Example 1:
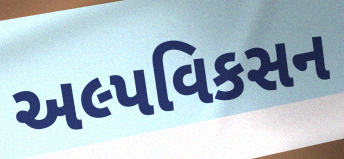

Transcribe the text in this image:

અલ્પવિકસન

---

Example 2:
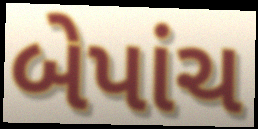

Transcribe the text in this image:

બેપાંચ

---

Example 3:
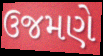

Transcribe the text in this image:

ઉજમણે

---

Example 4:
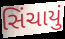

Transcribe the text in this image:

સિંચાયું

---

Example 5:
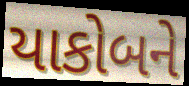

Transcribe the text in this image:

યાકોબને